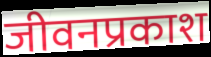
जीवनप्रकाश